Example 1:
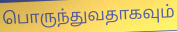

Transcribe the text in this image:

பொருந்துவதாகவும்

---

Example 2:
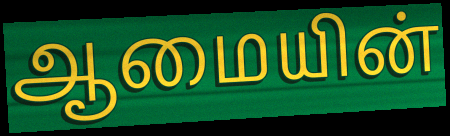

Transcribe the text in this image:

ஆமையின்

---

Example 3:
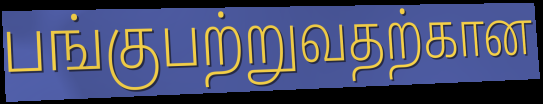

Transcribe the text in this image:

பங்குபற்றுவதற்கான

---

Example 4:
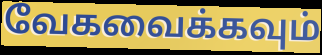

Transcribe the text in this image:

வேகவைக்கவும்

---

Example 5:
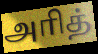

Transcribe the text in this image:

அரித்